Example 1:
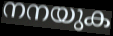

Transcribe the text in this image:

നനയുക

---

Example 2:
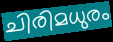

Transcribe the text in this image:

ചിരിമധുരം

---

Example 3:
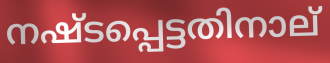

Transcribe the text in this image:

നഷ്ടപ്പെട്ടതിനാല്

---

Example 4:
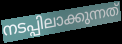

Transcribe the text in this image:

നടപ്പിലാക്കുന്നത്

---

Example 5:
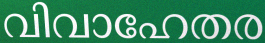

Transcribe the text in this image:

വിവാഹേതര